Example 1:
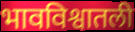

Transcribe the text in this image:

भावविश्वातली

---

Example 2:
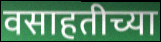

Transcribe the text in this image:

वसाहतीच्या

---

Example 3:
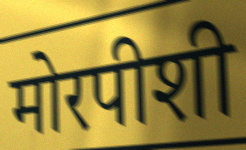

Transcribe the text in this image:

मोरपीशी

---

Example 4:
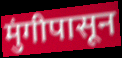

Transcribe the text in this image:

मुंगीपासून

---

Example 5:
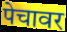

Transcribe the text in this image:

पेचावर